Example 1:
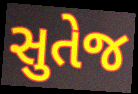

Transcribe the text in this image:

સુતેજ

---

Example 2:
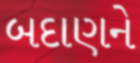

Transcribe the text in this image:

બદાણને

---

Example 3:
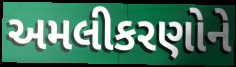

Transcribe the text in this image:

અમલીકરણોને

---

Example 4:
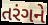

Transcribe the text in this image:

તરંગને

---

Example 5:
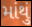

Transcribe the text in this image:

માંથું